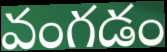
వంగడం